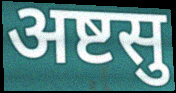
अष्टसु